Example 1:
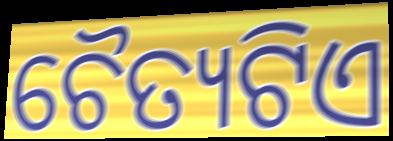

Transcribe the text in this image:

ଚୈତ୍ୟଟିଏ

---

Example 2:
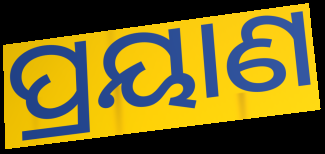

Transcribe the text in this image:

ପ୍ରୟାଣ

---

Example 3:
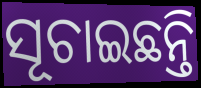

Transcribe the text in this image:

ସୂଚାଇଛନ୍ତି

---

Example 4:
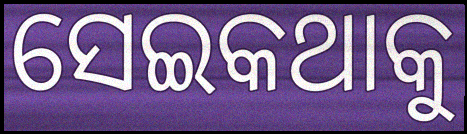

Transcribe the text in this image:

ସେଇକଥାକୁ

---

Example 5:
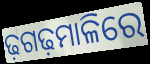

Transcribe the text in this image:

ଢ଼ଗଢ଼ମାଳିରେ